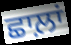
ਛਾਲ਼ਾਂ